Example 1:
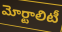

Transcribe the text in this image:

మోర్టాలిటీ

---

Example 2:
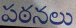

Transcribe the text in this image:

పఠనలు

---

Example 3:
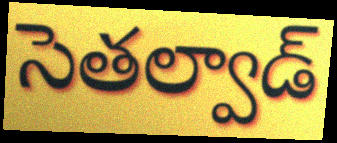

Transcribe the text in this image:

సెతల్వాడ్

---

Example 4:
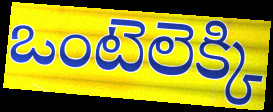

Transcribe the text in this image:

ఒంటెలెక్కి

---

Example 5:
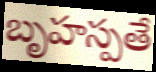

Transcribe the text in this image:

బృహస్పతే